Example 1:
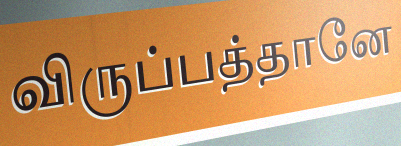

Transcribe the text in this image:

விருப்பத்தானே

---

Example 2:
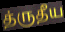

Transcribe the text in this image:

த்ருதீய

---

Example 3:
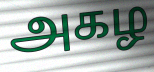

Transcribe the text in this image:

அகழ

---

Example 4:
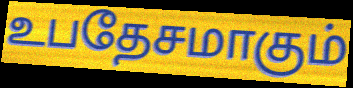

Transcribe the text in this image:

உபதேசமாகும்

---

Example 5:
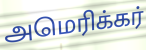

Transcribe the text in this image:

அமெரிக்கர்